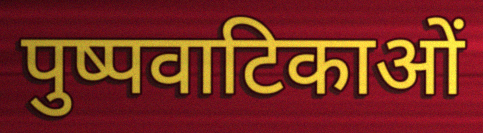
पुष्पवाटिकाओं